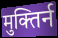
मुक्तिर्न